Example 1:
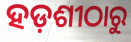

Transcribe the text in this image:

ହଡ଼ଶୀଠାରୁ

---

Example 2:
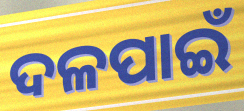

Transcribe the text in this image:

ଦଳପାଇଁ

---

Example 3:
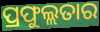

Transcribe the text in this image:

ପ୍ରଫୁଲ୍ଲତାର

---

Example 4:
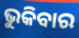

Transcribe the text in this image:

ଭୁକିବାର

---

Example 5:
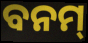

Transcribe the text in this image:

ବନମ୍